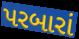
પરબારાં